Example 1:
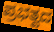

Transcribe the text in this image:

ಪ್ರಭತ್ವದ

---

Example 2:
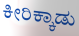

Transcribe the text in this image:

ಕೀರಿಕ್ಕಾಡು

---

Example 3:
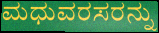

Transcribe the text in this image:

ಮಧುವರಸರನ್ನು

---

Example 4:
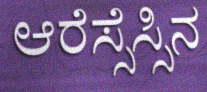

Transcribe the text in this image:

ಆರೆಸ್ಸೆಸ್ಸಿನ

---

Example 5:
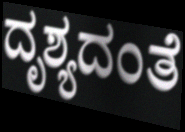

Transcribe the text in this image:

ದೃಶ್ಯದಂತೆ